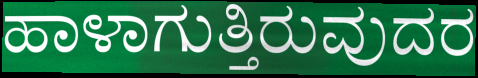
ಹಾಳಾಗುತ್ತಿರುವುದರ